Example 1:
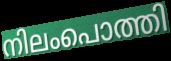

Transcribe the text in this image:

നിലംപൊത്തി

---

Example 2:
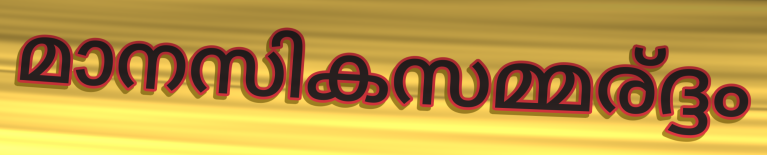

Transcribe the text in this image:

മാനസികസമ്മര്ദ്ദം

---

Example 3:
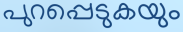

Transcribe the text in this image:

പുറപ്പെടുകയും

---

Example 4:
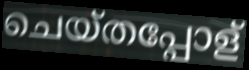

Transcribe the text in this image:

ചെയ്തപ്പോള്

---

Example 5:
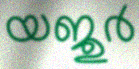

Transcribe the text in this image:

യജുർ